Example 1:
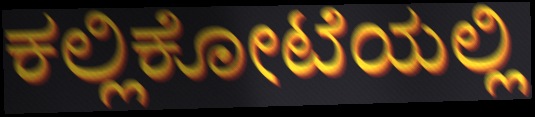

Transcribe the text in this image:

ಕಲ್ಲಿಕೋಟೆಯಲ್ಲಿ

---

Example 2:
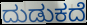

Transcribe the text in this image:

ದುಡುಕದೆ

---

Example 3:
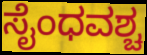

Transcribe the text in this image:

ಸೈಂಧವಶ್ಚ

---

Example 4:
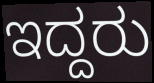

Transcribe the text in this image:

ಇದ್ದರು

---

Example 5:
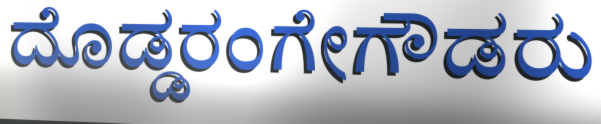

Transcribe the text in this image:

ದೊಡ್ಡರಂಗೇಗೌಡರು